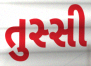
તુસ્સી